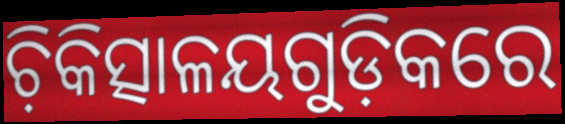
ଚ଼ିକିତ୍ସାଳୟଗୁଡ଼ିକରେ